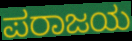
ಪರಾಜಯ